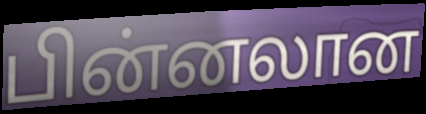
பின்னலான